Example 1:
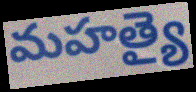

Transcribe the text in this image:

మహత్యై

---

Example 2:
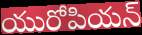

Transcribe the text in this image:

యురోపియన్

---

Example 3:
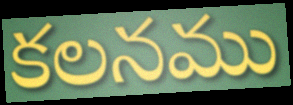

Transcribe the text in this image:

కలనము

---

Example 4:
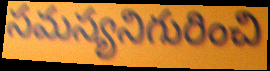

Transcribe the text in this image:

సమస్యనిగురించి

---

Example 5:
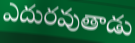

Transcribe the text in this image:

ఎదురవుతాడు